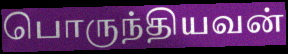
பொருந்தியவன்